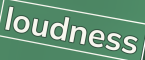
loudness